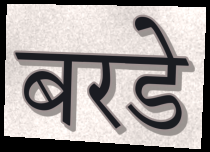
बरडे